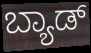
ಬ್ಯಾಡ್